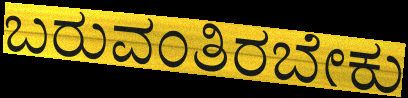
ಬರುವಂತಿರಬೇಕು